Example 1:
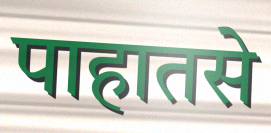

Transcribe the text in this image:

पाहातसे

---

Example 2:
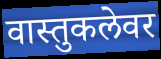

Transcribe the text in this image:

वास्तुकलेवर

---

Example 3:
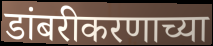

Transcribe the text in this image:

डांबरीकरणाच्या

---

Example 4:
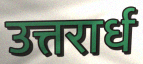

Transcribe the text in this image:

उत्तरार्ध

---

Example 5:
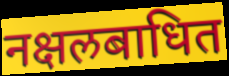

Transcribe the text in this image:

नक्षलबाधित